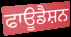
ਫਾਊਡੈਸ਼ਨ